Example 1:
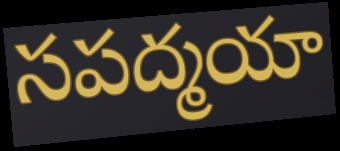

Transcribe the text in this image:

సపద్మయా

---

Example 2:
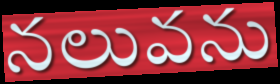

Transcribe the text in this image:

నలువను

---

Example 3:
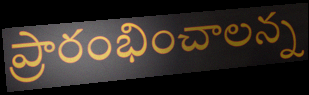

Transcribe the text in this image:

ప్రారంభించాలన్న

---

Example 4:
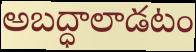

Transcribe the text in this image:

అబద్ధాలాడటం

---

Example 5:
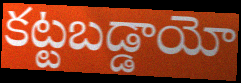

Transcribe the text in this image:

కట్టబడ్డాయో